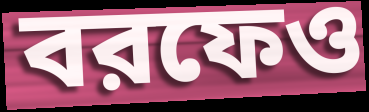
বরফেও